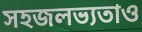
সহজলভ্যতাও